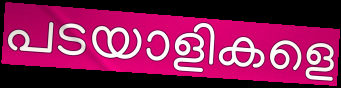
പടയാളികളെ